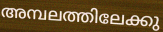
അമ്പലത്തിലേക്കു